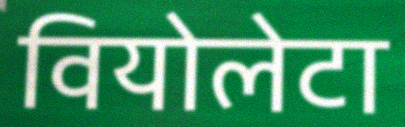
वियोलेटा